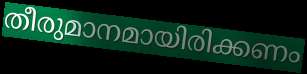
തീരുമാനമായിരിക്കണം